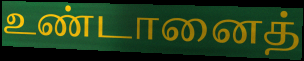
உண்டானைத்